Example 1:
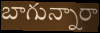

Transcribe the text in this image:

బాగున్నారా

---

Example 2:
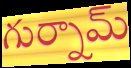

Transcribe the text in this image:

గుర్నామ్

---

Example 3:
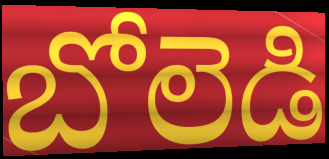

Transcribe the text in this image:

బోలెడి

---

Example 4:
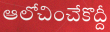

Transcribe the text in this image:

ఆలోచించేకొద్దీ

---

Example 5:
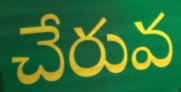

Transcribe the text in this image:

చేరువ